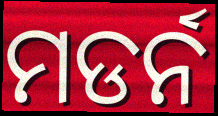
ମଡର୍ନ